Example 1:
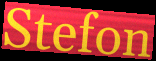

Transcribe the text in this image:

Stefon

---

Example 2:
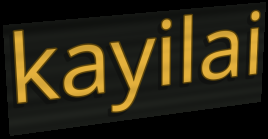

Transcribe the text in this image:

kayilai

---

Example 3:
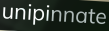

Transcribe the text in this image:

unipinnate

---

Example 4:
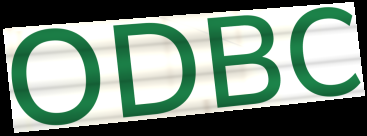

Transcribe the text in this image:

ODBC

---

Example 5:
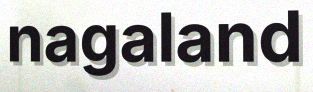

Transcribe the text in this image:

nagaland